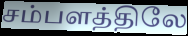
சம்பளத்திலே